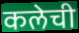
कलेची